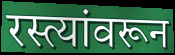
रस्त्यांवरून